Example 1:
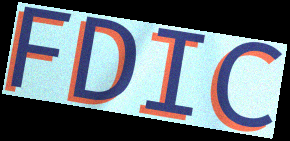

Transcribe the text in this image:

FDIC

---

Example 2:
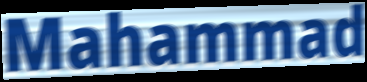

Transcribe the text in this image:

Mahammad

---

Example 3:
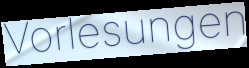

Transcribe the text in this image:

Vorlesungen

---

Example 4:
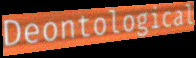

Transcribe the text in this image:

Deontological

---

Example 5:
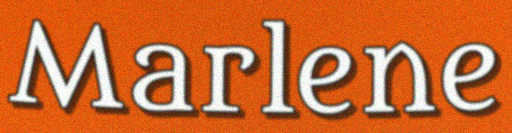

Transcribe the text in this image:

Marlene